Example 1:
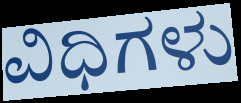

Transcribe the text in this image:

ವಿಧಿಗಳು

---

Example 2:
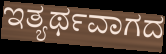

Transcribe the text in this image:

ಇತ್ಯರ್ಥವಾಗದ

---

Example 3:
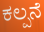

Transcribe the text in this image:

ಕಲ್ಪನೆ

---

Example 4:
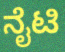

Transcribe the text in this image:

ನೈಟಿ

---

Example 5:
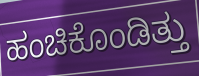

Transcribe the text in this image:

ಹಂಚಿಕೊಂಡಿತ್ತು